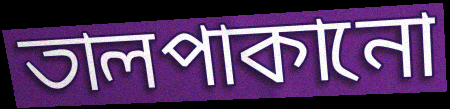
তালপাকানো